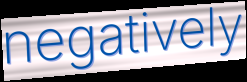
negatively